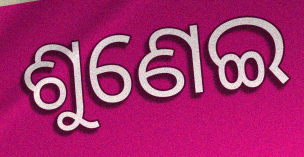
ଶୁଣେଇ